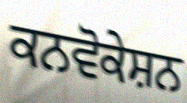
ਕਨਵੋਕੇਸ਼ਨ